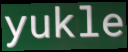
yukle